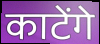
काटेंगे